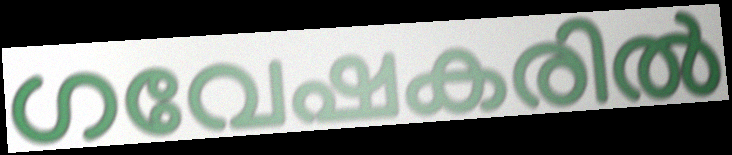
ഗവേഷകരിൽ